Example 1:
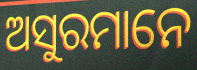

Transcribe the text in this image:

ଅସୁରମାନେ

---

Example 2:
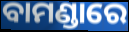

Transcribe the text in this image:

ବାମଣ୍ଡାରେ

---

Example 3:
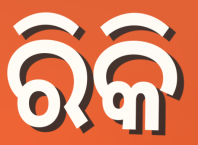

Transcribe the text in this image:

ରିକି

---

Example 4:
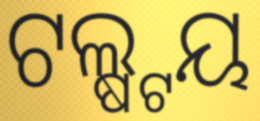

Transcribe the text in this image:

ଟଲ୍ଷ୍ଟୟ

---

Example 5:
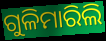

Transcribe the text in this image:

ଗୁଳିମାରିଲି